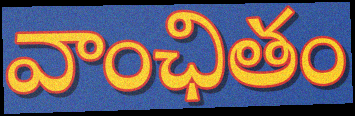
వాంఛితం